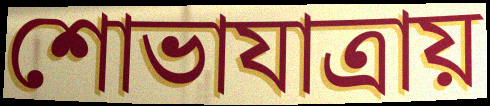
শোভাযাত্রায়